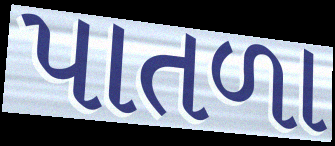
પાતળા